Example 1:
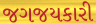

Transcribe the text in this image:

જગજયકારી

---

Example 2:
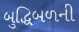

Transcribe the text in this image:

બુદ્ધિબળની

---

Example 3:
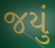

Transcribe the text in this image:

જયું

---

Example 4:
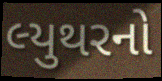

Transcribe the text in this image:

લ્યુથરનો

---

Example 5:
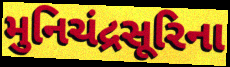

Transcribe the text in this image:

મુનિચંદ્રસૂરિના